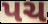
પચ